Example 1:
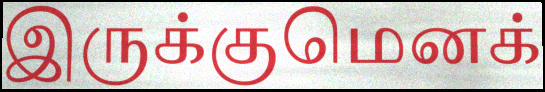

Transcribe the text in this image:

இருக்குமெனக்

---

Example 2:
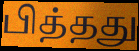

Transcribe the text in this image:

பித்தது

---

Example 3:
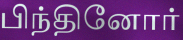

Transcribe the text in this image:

பிந்தினோர்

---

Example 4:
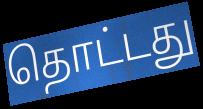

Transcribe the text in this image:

தொட்டது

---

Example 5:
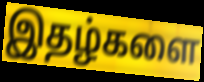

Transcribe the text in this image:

இதழ்களை